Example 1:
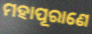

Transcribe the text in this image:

ମହାପୂରାଣେ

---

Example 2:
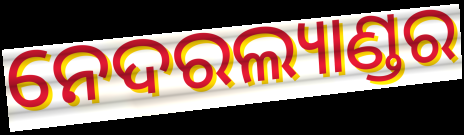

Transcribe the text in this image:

ନେଦରଲ୍ୟାଣ୍ଡର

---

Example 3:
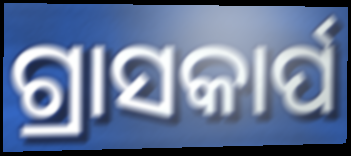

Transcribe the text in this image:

ଗ୍ରାସକାର୍ପ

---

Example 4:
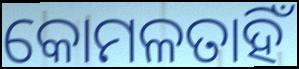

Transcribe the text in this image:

କୋମଳତାହିଁ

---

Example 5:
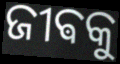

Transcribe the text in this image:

ଜୀଵକୁ